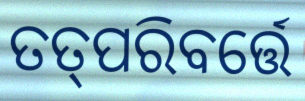
ତତ୍‌ପରିବର୍ତ୍ତେ